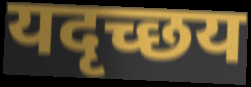
यदृच्छय